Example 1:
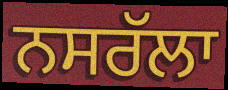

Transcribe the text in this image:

ਨਸਰੱਲਾ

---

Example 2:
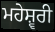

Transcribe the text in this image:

ਮਹੇਸ਼੍ਵਰੀ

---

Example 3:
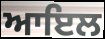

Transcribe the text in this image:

ਆਇਲ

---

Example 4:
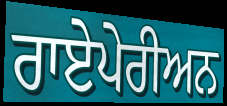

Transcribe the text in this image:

ਰਾਏਪੇਰੀਅਨ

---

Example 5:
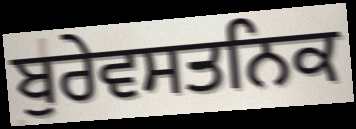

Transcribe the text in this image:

ਬੁਰੇਵਸਤਨਿਕ